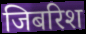
जिबरिश